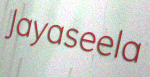
Jayaseela